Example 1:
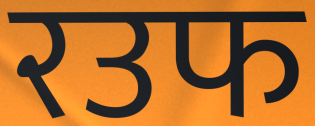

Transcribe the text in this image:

रउफ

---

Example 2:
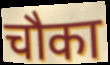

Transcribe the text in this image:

चौका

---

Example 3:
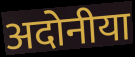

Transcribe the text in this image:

अदोनीया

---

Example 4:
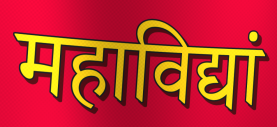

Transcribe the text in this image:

महाविद्यां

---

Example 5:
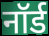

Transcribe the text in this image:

नॉर्ड